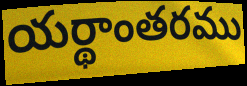
యర్థాంతరము